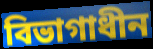
বিভাগাধীন